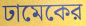
ঢামেকের